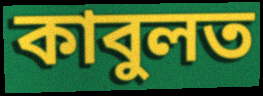
কাবুলত